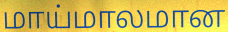
மாய்மாலமான